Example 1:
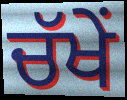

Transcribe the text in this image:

ਚੱਖੇਂ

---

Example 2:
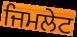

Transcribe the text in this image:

ਜਿਮਲੇਟ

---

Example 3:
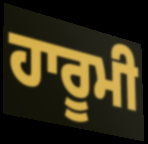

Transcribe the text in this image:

ਹਾਰੂਮੀ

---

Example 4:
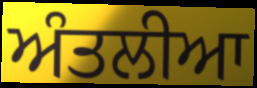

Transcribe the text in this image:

ਅੰਤਲੀਆ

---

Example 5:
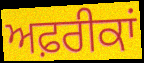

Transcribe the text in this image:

ਅਫ਼ਰੀਕਾਂ